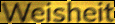
Weisheit